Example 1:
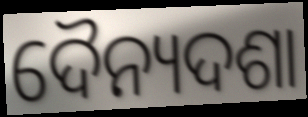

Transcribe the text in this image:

ଦୈନ୍ୟଦଶା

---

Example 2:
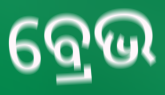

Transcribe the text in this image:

ବ୍ରେଭ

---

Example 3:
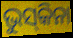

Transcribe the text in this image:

ଭୁସ୍‌କିନା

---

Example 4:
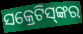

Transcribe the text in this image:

ସକ୍ରେଟିସ୍‌ଙ୍କର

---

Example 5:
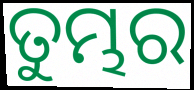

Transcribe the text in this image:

ତୁମ୍ଭର